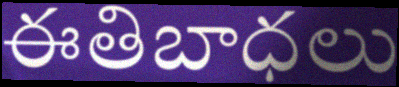
ఈతిబాధలు